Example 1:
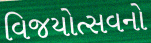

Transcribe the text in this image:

વિજયોત્સવનો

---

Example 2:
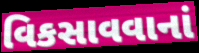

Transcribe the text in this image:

વિકસાવવાનાં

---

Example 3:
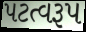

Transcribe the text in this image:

પટત્વરૂપ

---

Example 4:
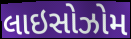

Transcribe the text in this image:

લાઇસોઝોમ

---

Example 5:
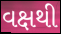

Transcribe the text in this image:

વક્ષથી